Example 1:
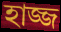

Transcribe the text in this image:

হাজ্জ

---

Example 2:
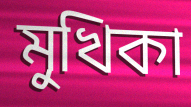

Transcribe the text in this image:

মুখিকা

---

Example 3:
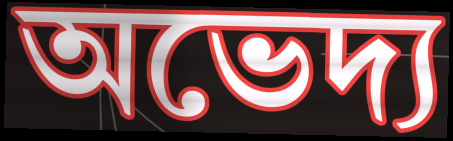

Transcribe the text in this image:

অভেদ্য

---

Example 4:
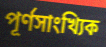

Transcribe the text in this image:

পূর্ণসাংখ্যিক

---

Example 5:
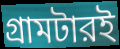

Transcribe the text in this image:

গ্রামটারই